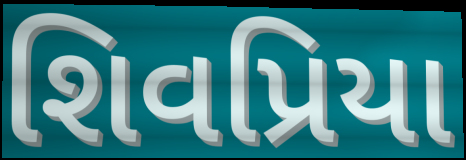
શિવપ્રિયા